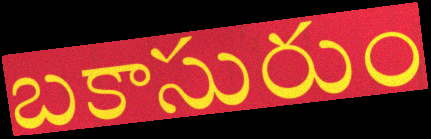
బకాసురుం